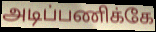
அடிப்பணிக்கே